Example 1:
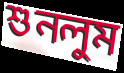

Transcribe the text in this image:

শুনলুম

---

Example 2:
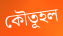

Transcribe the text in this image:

কৌতূহল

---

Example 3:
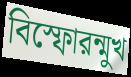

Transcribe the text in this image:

বিস্ফোরন্মুখ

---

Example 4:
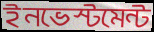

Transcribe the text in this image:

ইনভেস্টমেন্ট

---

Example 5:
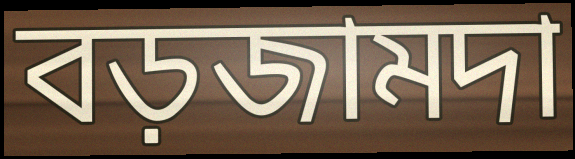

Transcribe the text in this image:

বড়জামদা